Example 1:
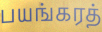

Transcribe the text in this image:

பயங்கரத்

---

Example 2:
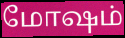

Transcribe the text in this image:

மோஷம்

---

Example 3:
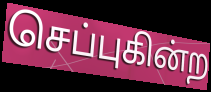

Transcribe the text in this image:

செப்புகின்ற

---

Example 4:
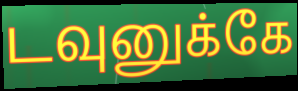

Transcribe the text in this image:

டவுனுக்கே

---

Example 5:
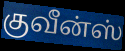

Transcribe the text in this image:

குவீன்ஸ்